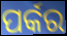
ପର୍କର